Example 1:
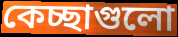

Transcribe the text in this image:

কেচ্ছাগুলো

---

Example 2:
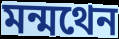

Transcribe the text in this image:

মন্মথেন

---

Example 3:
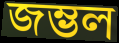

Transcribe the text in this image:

জম্ভল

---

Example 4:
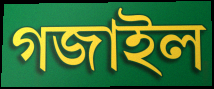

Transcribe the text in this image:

গজাইল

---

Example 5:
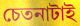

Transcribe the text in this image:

চেতনাটাই